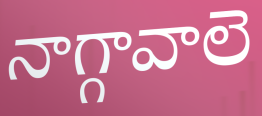
నాగ్గావాలె